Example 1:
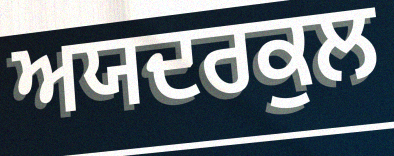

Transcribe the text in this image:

ਅਯਦਰਕੁਲ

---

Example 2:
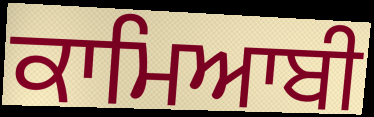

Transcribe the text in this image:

ਕਾਮਿਆਬੀ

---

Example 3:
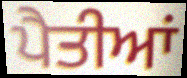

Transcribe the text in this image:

ਪੈਤੀਆਂ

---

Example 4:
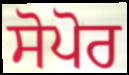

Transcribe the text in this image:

ਸੋਪੋਰ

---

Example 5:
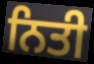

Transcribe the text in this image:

ਨਿਤੀ